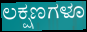
ಲಕ್ಷಣಗಳೂ